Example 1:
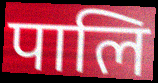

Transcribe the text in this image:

पालि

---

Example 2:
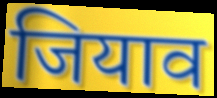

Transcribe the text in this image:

जियाव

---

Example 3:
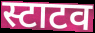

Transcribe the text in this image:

स्टाटव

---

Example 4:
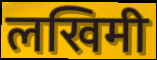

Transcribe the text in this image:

लखिमी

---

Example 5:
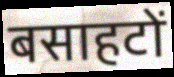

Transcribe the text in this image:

बसाहटों